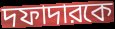
দফাদারকে